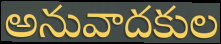
అనువాదకుల